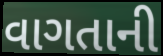
વાગતાની